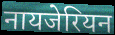
नायजेरियन